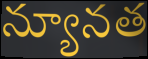
న్యూనత